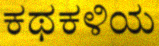
ಕಥಕಳಿಯ